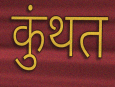
कुंथत